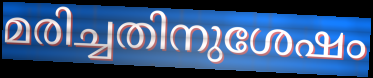
മരിച്ചതിനുശേഷം